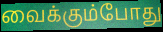
வைக்கும்போது